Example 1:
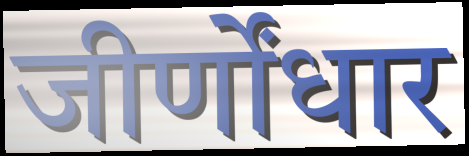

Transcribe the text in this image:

जीर्णोंधार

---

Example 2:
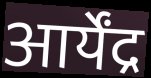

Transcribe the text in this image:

आर्येंद्र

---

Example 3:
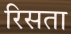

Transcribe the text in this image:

रिसता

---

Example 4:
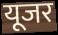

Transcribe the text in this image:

यूजर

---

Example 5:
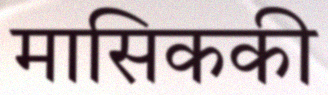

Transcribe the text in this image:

मासिककी